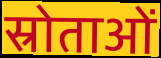
स्रोताओं